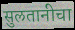
सुलतानीचा